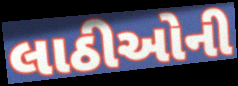
લાઠીઓની